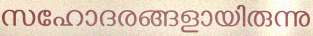
സഹോദരങ്ങളായിരുന്നു